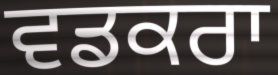
ਵਡਕਰਾ